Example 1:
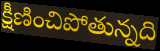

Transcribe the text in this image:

క్షీణించిపోతున్నది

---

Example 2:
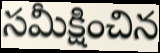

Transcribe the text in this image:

సమీక్షించిన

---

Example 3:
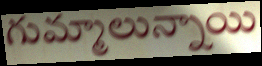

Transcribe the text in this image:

గుమ్మాలున్నాయి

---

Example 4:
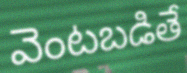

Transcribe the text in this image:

వెంటబడితే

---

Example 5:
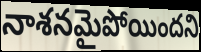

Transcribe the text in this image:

నాశనమైపోయిందని